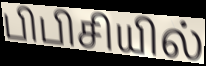
பிபிசியில்